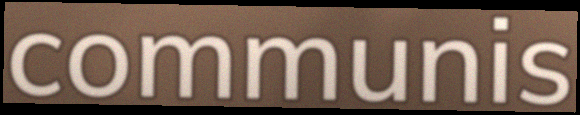
communis